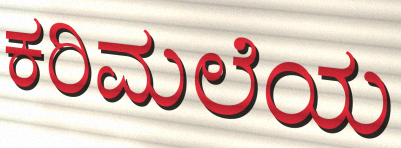
ಕರಿಮಲೆಯ